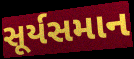
સૂર્યસમાન